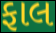
ફાલ